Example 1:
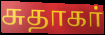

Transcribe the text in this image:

சுதாகர்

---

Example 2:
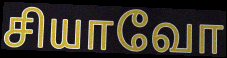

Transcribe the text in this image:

சியாவோ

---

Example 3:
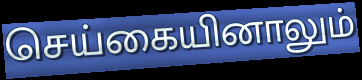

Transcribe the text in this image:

செய்கையினாலும்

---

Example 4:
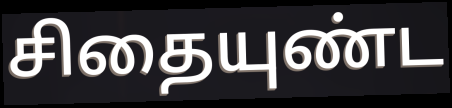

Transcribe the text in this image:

சிதையுண்ட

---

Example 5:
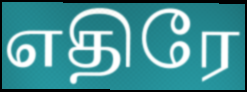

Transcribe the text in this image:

எதிரே